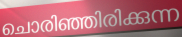
ചൊരിഞ്ഞിരിക്കുന്ന